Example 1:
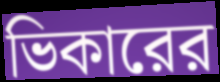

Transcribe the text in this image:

ভিকারের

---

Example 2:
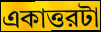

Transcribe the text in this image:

একাত্তরটা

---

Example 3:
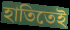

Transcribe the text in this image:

হাতিতেই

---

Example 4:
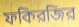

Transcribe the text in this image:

ফকিরজির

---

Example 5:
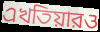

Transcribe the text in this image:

এখতিয়ারও